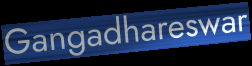
Gangadhareswar